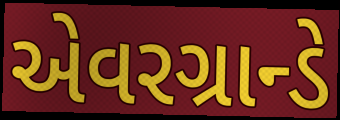
એવરગ્રાન્ડે